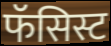
फॅसिस्ट